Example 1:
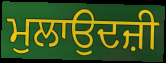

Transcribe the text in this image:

ਮੁਲਾਉਦਜ਼ੀ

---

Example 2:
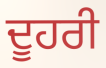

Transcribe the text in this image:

ਦੂਹਰੀ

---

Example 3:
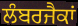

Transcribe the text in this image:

ਲੰਬਰਜੈਕਾਂ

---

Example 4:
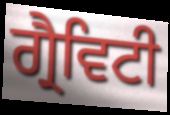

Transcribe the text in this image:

ਗ੍ਰੈਵਿਟੀ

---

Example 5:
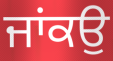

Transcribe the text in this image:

ਜਾਂਕਉ